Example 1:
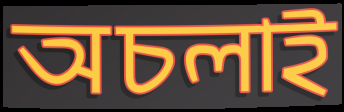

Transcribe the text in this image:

অচলাই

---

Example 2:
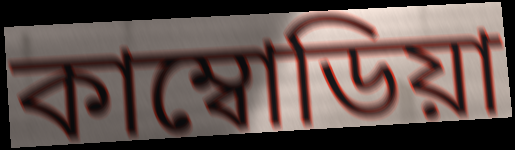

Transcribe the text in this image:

কাম্বোডিয়া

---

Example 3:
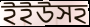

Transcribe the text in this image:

ইইউসহ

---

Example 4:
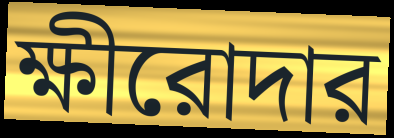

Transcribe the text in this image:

ক্ষীরোদার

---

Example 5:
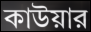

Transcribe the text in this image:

কাউয়ার